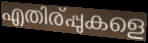
എതിര്പ്പുകളെ